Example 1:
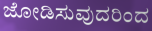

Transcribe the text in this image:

ಜೋಡಿಸುವುದರಿಂದ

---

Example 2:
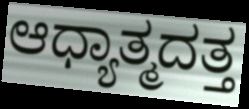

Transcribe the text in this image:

ಆಧ್ಯಾತ್ಮದತ್ತ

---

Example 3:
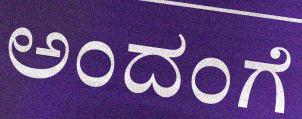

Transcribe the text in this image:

ಅಂದಂಗೆ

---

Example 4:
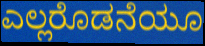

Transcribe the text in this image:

ಎಲ್ಲರೊಡನೆಯೂ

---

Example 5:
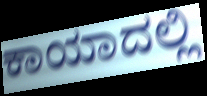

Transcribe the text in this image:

ಕಾಯಾದಲ್ಲಿ